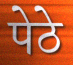
पेठे